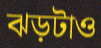
ঝড়টাও